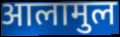
आलामुल